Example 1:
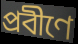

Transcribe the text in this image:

প্রবীণে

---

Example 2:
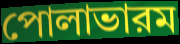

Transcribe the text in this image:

পোলাভারম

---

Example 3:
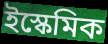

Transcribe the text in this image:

ইস্কেমিক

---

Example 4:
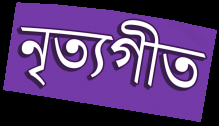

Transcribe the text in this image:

নৃত্যগীত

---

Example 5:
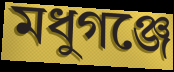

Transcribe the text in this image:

মধুগঞ্জে